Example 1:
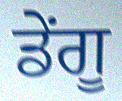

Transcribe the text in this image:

ਡੇਂਗੂ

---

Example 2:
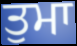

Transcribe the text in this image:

ਤੁਮਾ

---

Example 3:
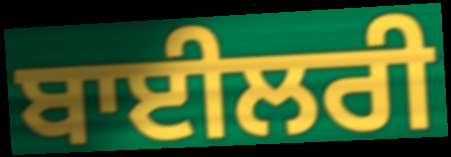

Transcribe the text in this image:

ਬਾਈਲਰੀ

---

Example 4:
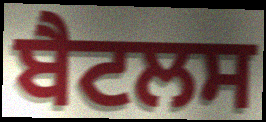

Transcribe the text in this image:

ਬੈਟਲਸ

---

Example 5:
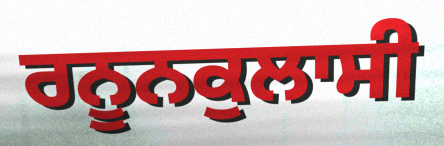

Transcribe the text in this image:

ਰਨੂਨਕੁਲਾਸੀ